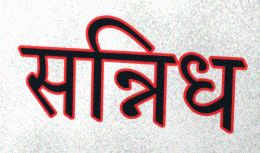
सन्निध